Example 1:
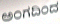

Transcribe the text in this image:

ಅಂಗದಿಂದ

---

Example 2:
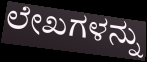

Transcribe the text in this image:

ಲೇಖಗಳನ್ನು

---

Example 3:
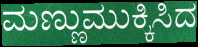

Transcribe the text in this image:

ಮಣ್ಣುಮುಕ್ಕಿಸಿದ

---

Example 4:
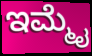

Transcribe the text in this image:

ಇಮ್ಮೈ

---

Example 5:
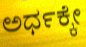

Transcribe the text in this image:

ಅರ್ಧಕ್ಕೇ